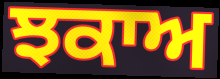
ਝਕਾਅ